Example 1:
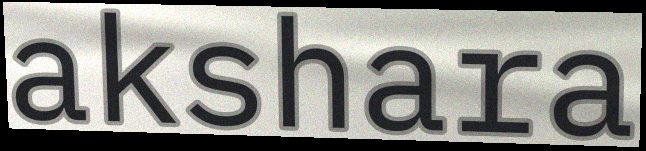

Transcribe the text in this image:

akshara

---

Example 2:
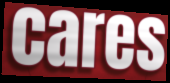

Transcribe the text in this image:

cares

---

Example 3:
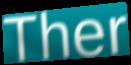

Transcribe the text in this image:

Ther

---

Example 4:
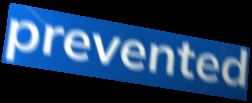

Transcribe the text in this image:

prevented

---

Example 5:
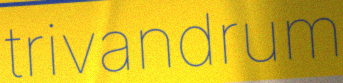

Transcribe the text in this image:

trivandrum